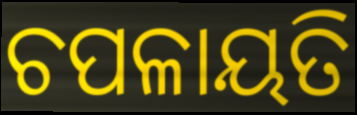
ଚପଳାୟତି